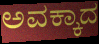
ಅವಕ್ಕಾದ